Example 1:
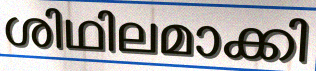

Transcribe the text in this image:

ശിഥിലമാക്കി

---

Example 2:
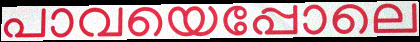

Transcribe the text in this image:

പാവയെപ്പോലെ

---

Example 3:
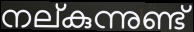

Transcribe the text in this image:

നല്കുന്നുണ്ട്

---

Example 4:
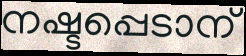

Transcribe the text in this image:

നഷ്ടപ്പെടാന്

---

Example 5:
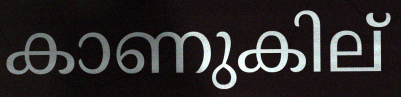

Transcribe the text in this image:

കാണുകില്